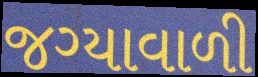
જગ્યાવાળી